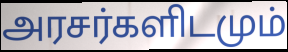
அரசர்களிடமும்